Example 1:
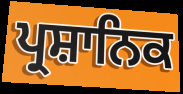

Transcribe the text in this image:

ਪ੍ਰਸ਼ਾਨਿਕ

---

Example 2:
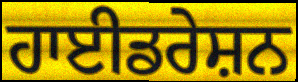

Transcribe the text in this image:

ਹਾਈਡਰੇਸ਼ਨ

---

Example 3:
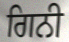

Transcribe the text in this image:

ਗਿਨੀ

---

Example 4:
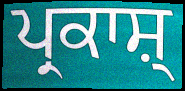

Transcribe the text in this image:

ਪ੍ਰਕਾਸ਼੍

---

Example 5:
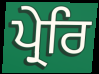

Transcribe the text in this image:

ਪ੍ਰੇਰਿ